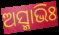
ଅସ୍ମାଭିଃ